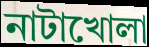
নাটাখোলা